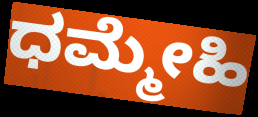
ಧಮ್ಮೇಹಿ